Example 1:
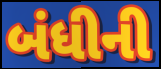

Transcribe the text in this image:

બંધીની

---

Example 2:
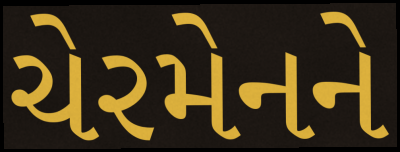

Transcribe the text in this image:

ચેરમેનને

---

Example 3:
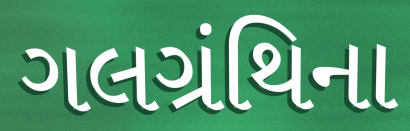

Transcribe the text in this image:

ગલગ્રંથિના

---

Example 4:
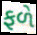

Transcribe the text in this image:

ફળે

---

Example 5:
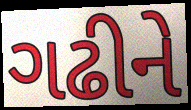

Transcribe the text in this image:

ગઢીને